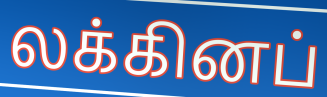
லக்கினப்